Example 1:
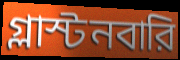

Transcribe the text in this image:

গ্লাস্টনবারি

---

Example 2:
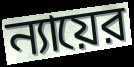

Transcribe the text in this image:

ন্যায়ের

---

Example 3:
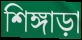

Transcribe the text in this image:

শিঙ্গাড়া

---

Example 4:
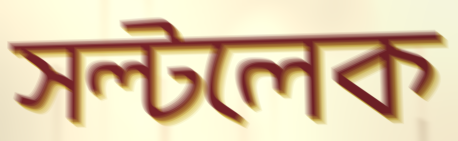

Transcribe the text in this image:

সল্টলেক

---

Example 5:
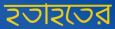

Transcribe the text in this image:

হতাহতের